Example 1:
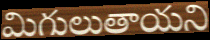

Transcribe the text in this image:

మిగులుతాయని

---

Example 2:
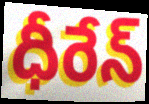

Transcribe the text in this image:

ధీరేన్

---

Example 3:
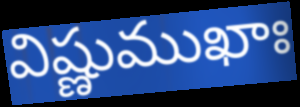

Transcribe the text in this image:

విష్ణుముఖాః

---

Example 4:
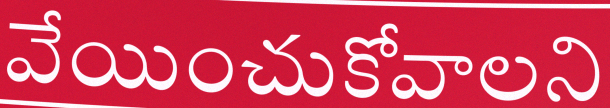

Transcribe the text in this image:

వేయించుకోవాలని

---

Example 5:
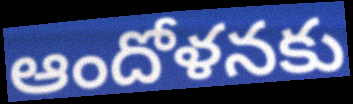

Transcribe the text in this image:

ఆందోళనకు